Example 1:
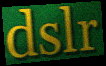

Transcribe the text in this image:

dslr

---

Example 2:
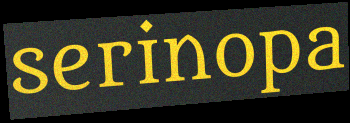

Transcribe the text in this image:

serinopa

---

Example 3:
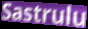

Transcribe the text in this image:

Sastrulu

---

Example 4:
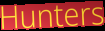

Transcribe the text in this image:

Hunters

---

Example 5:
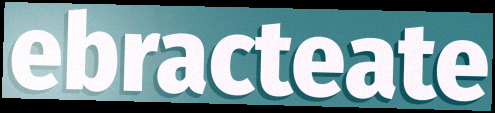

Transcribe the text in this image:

ebracteate